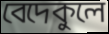
বেদেকুলে